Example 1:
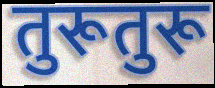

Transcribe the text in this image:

तुरूतुरू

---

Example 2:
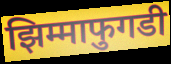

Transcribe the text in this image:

झिम्माफुगडी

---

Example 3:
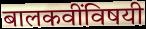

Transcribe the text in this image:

बालकवींविषयी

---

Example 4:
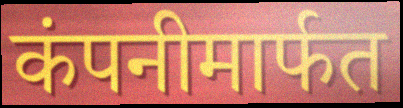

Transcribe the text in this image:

कंपनीमार्फत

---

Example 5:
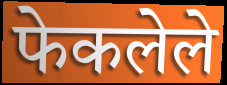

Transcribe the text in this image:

फेकलेले